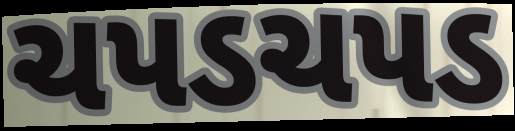
ચપડચપડ